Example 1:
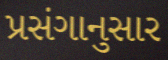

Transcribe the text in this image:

પ્રસંગાનુસાર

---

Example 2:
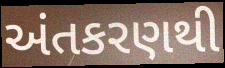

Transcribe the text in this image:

અંતકરણથી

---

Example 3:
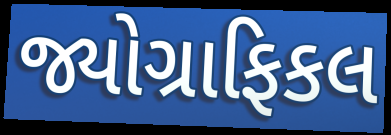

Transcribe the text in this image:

જ્યોગ્રાફિકલ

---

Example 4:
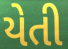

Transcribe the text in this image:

યેતી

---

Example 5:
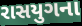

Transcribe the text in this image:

રાસયુગના